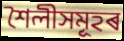
শৈলীসমূহৰ